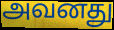
அவனது